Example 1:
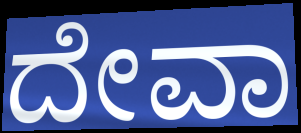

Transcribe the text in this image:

ದೇವಾ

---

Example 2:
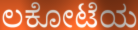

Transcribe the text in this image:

ಲಕೋಟೆಯ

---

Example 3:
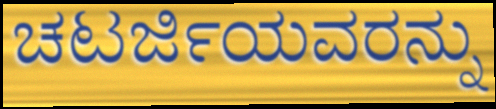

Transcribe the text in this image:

ಚಟರ್ಜಿಯವರನ್ನು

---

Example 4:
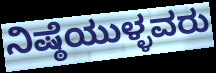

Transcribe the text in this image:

ನಿಷ್ಠೆಯುಳ್ಳವರು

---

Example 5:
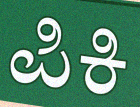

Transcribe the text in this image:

ಪಿಕಿ